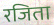
रजिता